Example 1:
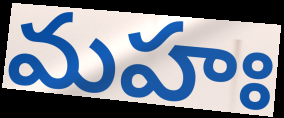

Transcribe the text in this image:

మహః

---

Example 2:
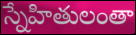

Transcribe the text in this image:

స్నేహితులంతా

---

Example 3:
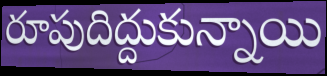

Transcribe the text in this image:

రూపుదిద్దుకున్నాయి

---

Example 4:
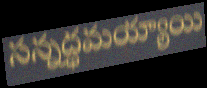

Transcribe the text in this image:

సన్నద్ధమయ్యాయి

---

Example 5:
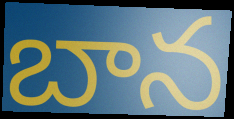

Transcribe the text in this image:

బాన